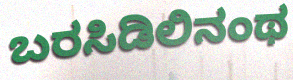
ಬರಸಿಡಿಲಿನಂಥ